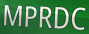
MPRDC